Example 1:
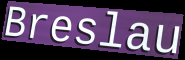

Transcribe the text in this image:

Breslau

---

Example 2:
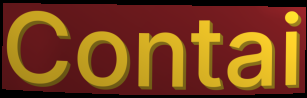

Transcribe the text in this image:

Contai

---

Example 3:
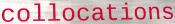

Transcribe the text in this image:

collocations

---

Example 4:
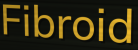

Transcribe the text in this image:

Fibroid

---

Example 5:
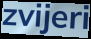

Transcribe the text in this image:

zvijeri